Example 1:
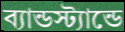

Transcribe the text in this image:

ব্যান্ডস্ট্যান্ডে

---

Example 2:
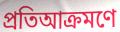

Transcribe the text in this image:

প্রতিআক্রমণে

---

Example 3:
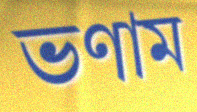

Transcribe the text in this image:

ভণাম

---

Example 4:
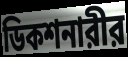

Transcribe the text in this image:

ডিকশনারীর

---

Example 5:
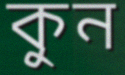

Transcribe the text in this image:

কুন